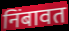
निंबावत